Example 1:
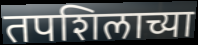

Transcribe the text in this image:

तपशिलाच्या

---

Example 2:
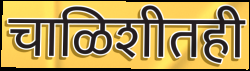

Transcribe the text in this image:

चाळिशीतही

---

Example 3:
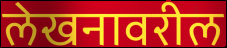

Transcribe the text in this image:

लेखनावरील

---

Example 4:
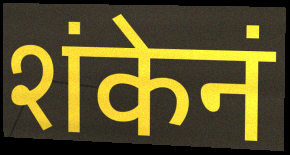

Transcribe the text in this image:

शंकेनं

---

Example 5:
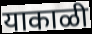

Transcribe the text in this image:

याकाळी